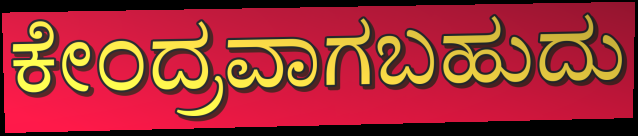
ಕೇಂದ್ರವಾಗಬಹುದು